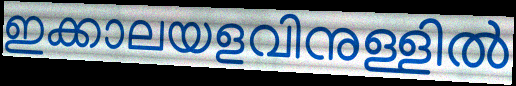
ഇക്കാലയളവിനുള്ളിൽ